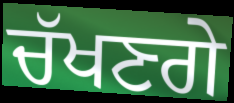
ਚੱਖਣਗੇ